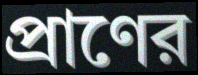
প্রাণের